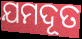
ଯମଦୂତ